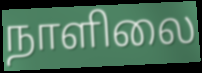
நாளிலை